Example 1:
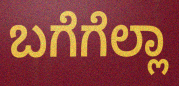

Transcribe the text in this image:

ಬಗೆಗೆಲ್ಲಾ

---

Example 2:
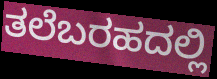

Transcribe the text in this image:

ತಲೆಬರಹದಲ್ಲಿ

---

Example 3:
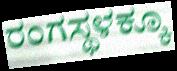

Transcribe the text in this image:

ರಂಗಸ್ಥಳಕ್ಕೂ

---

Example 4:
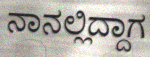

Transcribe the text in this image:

ನಾನಲ್ಲಿದ್ದಾಗ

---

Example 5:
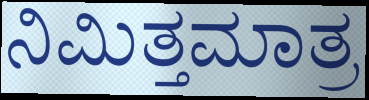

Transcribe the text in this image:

ನಿಮಿತ್ತಮಾತ್ರ